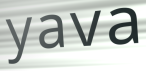
yava